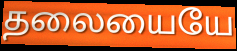
தலையையே